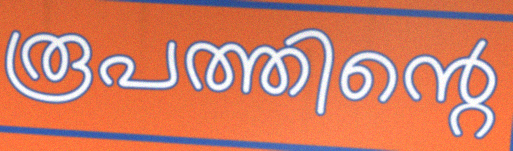
രൂപത്തിന്റെ